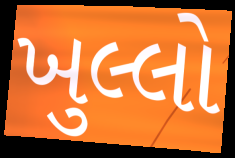
ખુલ્લો